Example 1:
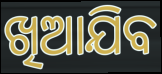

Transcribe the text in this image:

ଖିଆଯିବ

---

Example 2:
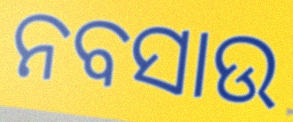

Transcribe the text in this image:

ନବସାଉ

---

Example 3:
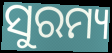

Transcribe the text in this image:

ସୁରମ୍ୟ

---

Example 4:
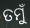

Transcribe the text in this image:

ତମୁଁ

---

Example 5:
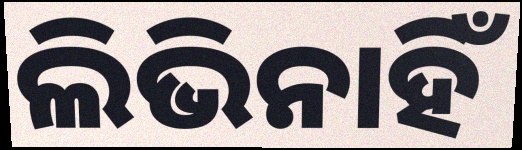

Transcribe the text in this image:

ଲିଭିନାହିଁ